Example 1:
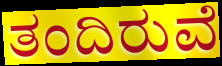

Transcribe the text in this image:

ತಂದಿರುವೆ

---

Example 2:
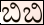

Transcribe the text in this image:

ಬಿಬಿ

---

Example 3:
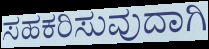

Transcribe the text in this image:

ಸಹಕರಿಸುವುದಾಗಿ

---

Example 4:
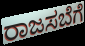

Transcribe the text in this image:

ರಾಜಸಬೆಗೆ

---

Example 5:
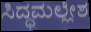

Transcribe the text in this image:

ಸಿದ್ಧಮಲ್ಲೇಶ